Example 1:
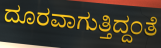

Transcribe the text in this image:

ದೂರವಾಗುತ್ತಿದ್ದಂತೆ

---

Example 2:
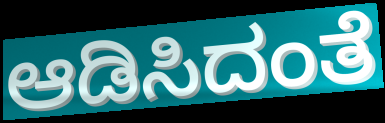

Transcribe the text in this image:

ಆಡಿಸಿದಂತೆ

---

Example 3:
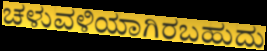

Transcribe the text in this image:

ಚಳುವಳಿಯಾಗಿರಬಹುದು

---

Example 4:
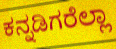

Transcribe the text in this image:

ಕನ್ನಡಿಗರೆಲ್ಲಾ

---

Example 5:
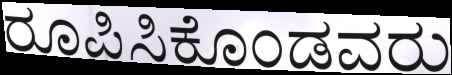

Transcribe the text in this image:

ರೂಪಿಸಿಕೊಂಡವರು